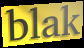
blak